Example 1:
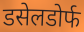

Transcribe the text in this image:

डसेलडोर्फ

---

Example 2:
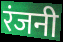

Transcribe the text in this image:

रंजनी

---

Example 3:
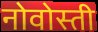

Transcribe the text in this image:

नोवोस्ती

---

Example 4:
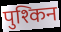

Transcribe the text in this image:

पुश्किन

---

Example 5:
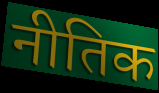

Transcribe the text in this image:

नीतिक